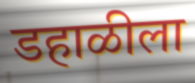
डहाळीला